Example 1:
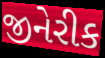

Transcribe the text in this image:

જીનેરીક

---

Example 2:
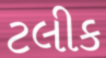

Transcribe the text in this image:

ટલીક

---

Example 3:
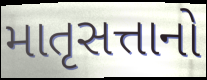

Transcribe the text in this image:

માતૃસત્તાનો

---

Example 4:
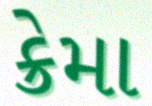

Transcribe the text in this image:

ક્રેમા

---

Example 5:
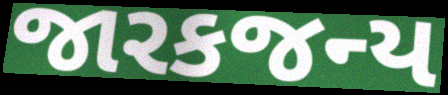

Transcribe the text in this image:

જારકજન્ય